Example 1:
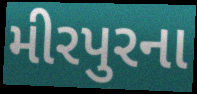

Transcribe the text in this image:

મીરપુરના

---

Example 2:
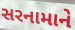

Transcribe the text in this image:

સરનામાને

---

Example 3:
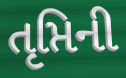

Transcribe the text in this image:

તૃપ્તિની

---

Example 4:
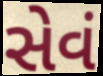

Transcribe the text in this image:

સેવં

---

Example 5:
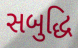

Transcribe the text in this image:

સબુદ્ધિ